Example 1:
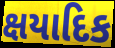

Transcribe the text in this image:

ક્ષયાદિક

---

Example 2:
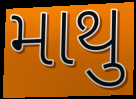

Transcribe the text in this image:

માથુ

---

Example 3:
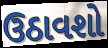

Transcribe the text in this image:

ઉઠાવશો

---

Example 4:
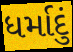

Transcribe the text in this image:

ધર્માદું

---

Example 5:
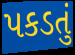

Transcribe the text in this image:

પકડતું